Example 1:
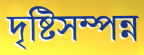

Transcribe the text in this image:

দৃষ্টিসম্পন্ন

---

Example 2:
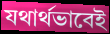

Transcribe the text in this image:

যথার্থভাবেই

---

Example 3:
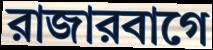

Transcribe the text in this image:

রাজারবাগে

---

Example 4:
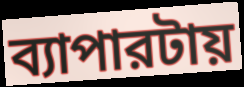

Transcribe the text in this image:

ব্যাপারটায়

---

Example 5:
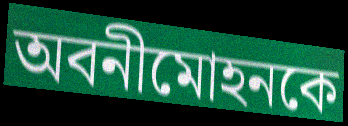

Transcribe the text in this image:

অবনীমোহনকে